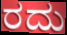
ರದು